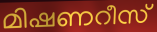
മിഷണറീസ്